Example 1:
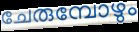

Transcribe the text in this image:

ചേരുമ്പോഴും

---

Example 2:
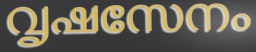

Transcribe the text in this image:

വൃഷസേനം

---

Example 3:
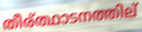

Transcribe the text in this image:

തീര്ത്ഥാടനത്തില്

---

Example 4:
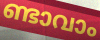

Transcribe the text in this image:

ണ്ടാവാം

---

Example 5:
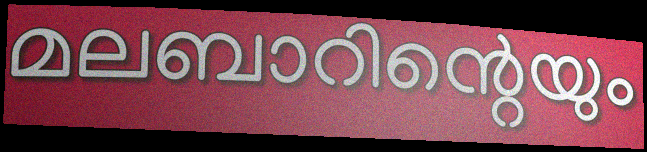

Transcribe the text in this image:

മലബാറിന്റെയും